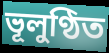
ভূলুণ্ঠিত